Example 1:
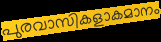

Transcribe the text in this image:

പുരവാസികളാകമാനം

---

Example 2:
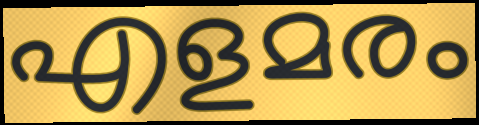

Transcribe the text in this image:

എളമരം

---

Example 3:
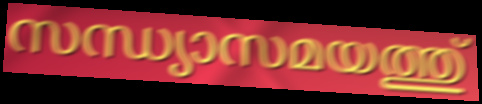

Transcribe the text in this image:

സന്ധ്യാസമയത്തു്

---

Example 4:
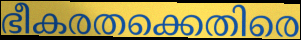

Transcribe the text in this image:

ഭീകരതക്കെതിരെ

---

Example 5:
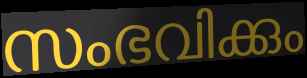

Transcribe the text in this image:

സംഭവിക്കും